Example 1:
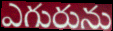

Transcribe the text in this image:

ఎగురును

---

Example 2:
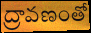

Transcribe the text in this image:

ద్రావణంతో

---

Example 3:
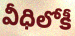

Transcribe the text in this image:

వీధిలోకీ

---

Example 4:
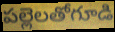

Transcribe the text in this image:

పల్లెలతోగూడి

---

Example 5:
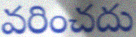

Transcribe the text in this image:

వరించదు